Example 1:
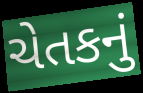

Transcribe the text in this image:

ચેતકનું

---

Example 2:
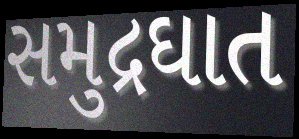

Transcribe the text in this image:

સમુદ્રઘાત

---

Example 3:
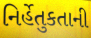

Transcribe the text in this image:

નિર્હેતુકતાની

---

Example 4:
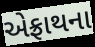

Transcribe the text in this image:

એફ્રાથના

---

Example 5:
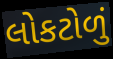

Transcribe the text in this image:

લોકટોળું